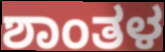
ಶಾಂತಳ